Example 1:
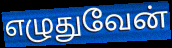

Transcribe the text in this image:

எழுதுவேன்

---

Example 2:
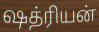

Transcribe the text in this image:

ஷத்ரியன்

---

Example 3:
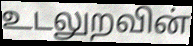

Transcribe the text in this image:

உடலுறவின்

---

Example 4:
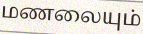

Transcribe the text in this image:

மணலையும்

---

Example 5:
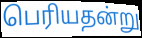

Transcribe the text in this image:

பெரியதன்று